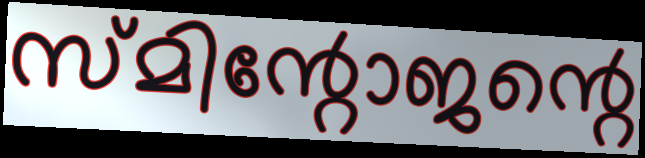
സ്മിന്റോജന്റെ